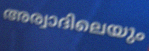
അര്വാദിലെയും